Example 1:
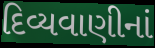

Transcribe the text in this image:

દિવ્યવાણીનાં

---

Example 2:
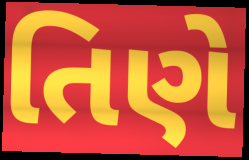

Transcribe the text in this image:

તિણે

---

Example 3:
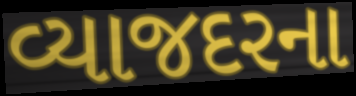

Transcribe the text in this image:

વ્યાજદરના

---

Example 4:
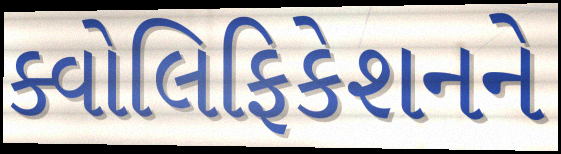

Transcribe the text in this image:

ક્વોલિફિકેશનને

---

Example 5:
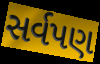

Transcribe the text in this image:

સર્વપણ